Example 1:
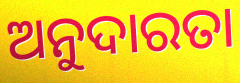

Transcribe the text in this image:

ଅନୁଦାରତା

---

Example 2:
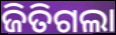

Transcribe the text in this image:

ଜିତିଗଲା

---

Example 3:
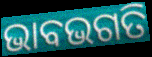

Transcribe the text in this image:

ଭାବଭଗତି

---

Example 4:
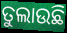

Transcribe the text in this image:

ତୁଲାଉଛି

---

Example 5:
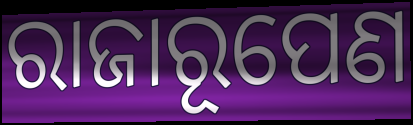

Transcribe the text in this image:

ରାଜାରୂପେଣ